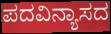
ಪದವಿನ್ಯಾಸದ